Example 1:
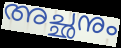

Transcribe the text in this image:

അച്ഛനും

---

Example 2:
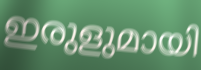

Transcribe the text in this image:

ഇരുളുമായി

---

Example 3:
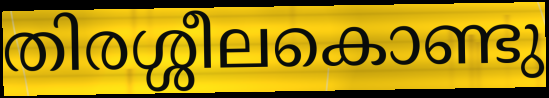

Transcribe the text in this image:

തിരശ്ശീലകൊണ്ടു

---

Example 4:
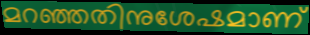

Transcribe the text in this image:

മറഞ്ഞതിനുശേഷമാണ്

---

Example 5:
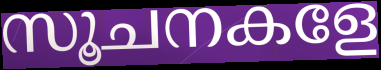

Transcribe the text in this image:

സൂചനകളേ